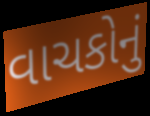
વાચકોનું